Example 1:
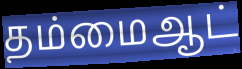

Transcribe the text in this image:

தம்மைஆட்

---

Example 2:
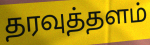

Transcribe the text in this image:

தரவுத்தளம்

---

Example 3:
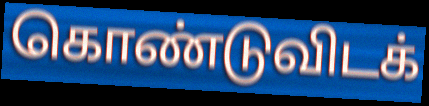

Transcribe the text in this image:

கொண்டுவிடக்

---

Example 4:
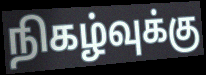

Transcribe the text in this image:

நிகழ்வுக்கு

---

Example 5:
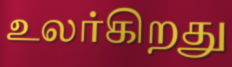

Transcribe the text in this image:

உலர்கிறது